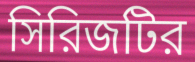
সিরিজটির